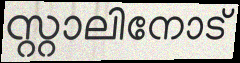
സ്റ്റാലിനോട്